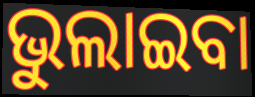
ଭୁଲାଇବା